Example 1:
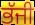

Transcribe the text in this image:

ਭੱਜੀ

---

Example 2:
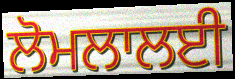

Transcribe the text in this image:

ਲੋਮਲਾਲਈ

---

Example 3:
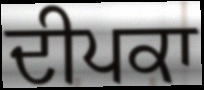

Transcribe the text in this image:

ਦੀਪਕਾ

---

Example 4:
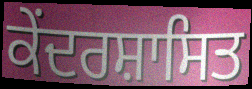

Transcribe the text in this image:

ਕੇਂਦਰਸ਼ਾਸਿਤ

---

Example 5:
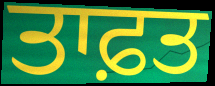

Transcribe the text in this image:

ਤਾਫ਼ਤ